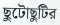
ছুটোছুটির